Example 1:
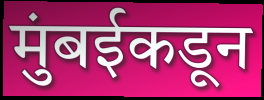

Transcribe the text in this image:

मुंबईकडून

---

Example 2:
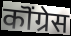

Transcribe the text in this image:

कॊंग्रेस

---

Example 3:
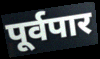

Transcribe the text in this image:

पूर्वपार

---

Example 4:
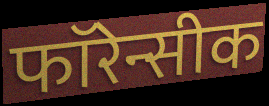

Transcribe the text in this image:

फॉरेन्सीक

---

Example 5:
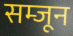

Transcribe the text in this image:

सम्जून